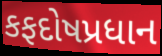
કફદોષપ્રધાન